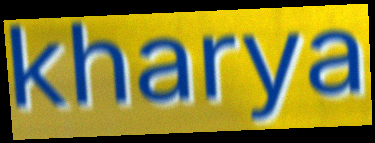
kharya